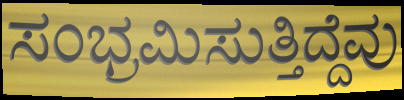
ಸಂಭ್ರಮಿಸುತ್ತಿದ್ದೆವು